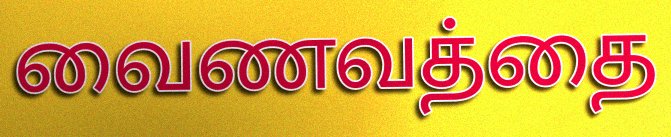
வைணவத்தை